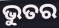
ଭୁତର